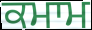
ਕਮਾਮ